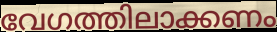
വേഗത്തിലാക്കണം